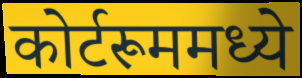
कोर्टरूममध्ये